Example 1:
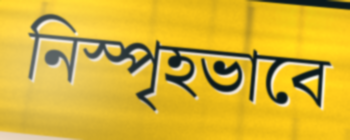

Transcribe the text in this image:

নিস্পৃহভাবে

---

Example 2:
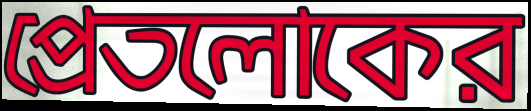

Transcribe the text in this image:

প্রেতলোকের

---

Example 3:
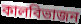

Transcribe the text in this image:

কালবিভাজন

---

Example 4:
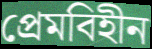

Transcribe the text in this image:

প্রেমবিহীন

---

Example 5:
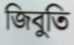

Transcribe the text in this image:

জিবুতি